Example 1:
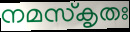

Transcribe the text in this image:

നമസ്കൃതഃ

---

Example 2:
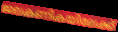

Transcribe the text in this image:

ജലകണികയിലേക്ക്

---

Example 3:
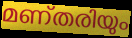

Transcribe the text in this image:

മണ്തരിയും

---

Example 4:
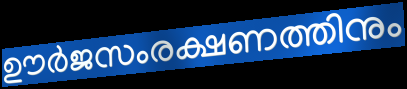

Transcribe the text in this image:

ഊർജസംരക്ഷണത്തിനും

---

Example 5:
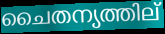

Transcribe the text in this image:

ചൈതന്യത്തില്